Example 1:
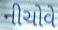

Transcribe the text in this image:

નીચોવે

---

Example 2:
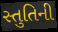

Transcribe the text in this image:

સ્તુતિની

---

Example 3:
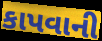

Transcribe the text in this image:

કાપવાની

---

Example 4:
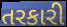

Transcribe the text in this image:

તરકારી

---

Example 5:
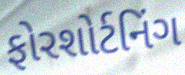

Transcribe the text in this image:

ફોરશોર્ટનિંગ